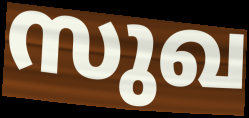
സുഖ